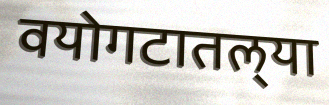
वयोगटातल्या